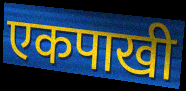
एकपाखी